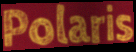
Polaris